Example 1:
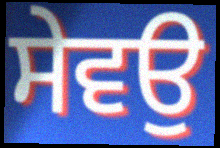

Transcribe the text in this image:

ਸੇਵਉ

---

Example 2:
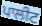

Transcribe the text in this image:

ਪਾਲੀਟ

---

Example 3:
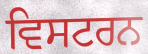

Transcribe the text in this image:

ਵਿਸਟਰਨ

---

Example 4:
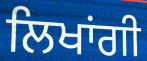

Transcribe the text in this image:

ਲਿਖਾਂਗੀ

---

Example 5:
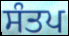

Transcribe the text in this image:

ਸੰਤਪ